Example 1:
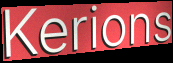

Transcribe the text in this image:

Kerions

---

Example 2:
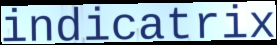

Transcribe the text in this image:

indicatrix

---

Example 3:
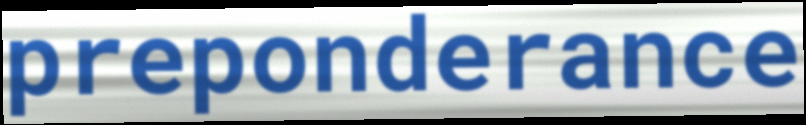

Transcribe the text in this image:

preponderance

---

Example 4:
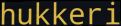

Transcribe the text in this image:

hukkeri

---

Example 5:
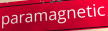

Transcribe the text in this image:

paramagnetic